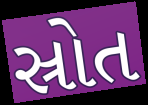
સ્રોત